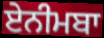
ਏਨੀਮਬਾ